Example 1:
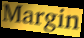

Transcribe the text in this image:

Margin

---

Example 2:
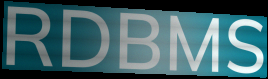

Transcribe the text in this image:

RDBMS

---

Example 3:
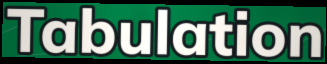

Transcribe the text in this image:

Tabulation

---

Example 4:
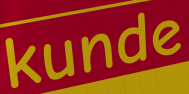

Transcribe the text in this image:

kunde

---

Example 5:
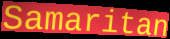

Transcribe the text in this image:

Samaritan